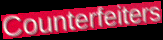
Counterfeiters